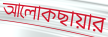
আলোকছায়ার